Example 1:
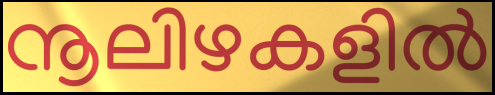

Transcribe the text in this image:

നൂലിഴകളിൽ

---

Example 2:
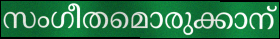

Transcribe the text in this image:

സംഗീതമൊരുക്കാന്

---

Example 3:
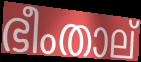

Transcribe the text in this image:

ഭീംതാല്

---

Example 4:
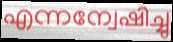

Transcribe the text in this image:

എന്നന്വേഷിച്ചു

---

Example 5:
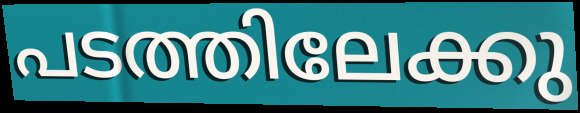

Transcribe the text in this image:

പടത്തിലേക്കു